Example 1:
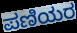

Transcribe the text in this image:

ಪಣಿಯರ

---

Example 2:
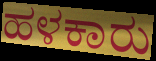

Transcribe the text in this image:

ಹಳಕಾರು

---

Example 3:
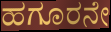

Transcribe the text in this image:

ಹಗೂರನೇ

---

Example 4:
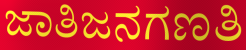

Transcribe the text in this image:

ಜಾತಿಜನಗಣತಿ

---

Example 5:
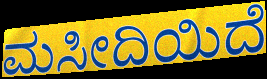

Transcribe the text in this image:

ಮಸೀದಿಯಿದೆ